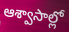
ఆశ్వాసాల్లో